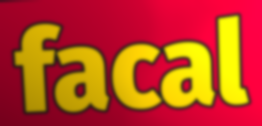
facal